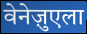
वेनेज़ुएला